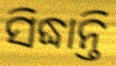
ସିଦ୍ଧାନ୍ତି